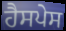
ਹੈਸਪੇਸ